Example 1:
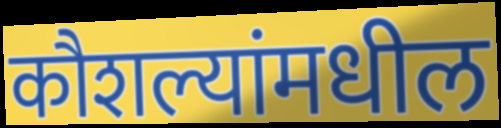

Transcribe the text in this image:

कौशल्यांमधील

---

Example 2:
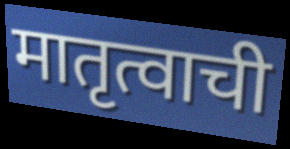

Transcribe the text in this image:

मातृत्वाची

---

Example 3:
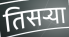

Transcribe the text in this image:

तिसऱ्या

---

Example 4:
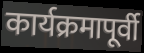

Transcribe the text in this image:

कार्यक्रमापूर्वी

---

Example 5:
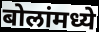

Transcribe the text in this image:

बोलांमध्ये